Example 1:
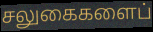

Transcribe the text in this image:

சலுகைகளைப்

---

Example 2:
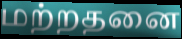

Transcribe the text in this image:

மற்றதனை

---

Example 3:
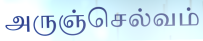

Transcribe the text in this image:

அருஞ்செல்வம்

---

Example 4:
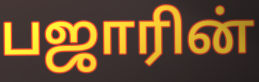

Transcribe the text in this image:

பஜாரின்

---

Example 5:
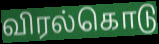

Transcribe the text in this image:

விரல்கொடு